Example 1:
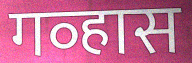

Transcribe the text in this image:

गव्हास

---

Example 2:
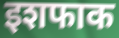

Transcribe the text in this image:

इशफाक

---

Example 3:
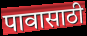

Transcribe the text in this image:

पावासाठी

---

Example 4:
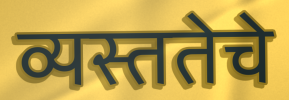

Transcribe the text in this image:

व्यस्ततेचे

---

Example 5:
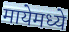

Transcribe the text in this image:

मायेमध्ये